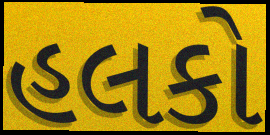
હલકો